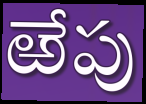
ఱేపు